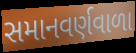
સમાનવર્ણવાળા